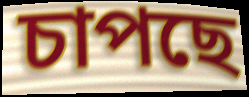
চাপছে